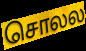
சொலல